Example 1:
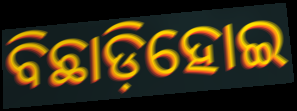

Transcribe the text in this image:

ବିଛାଡ଼ିହୋଇ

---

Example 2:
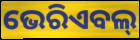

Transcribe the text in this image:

ଭେରିଏବଲ୍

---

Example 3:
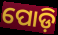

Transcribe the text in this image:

ପୋଡ଼ି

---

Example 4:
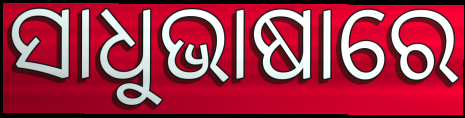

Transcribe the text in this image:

ସାଧୁଭାଷାରେ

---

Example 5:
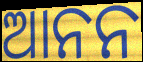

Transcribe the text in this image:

ଆନନ